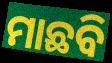
ମାଛବି